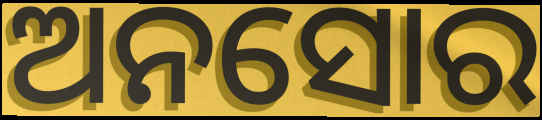
ଅନସୋର